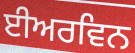
ਈਅਰਵਿਨ